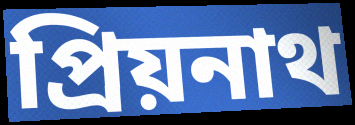
প্রিয়নাথ